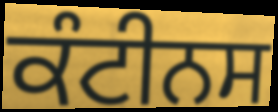
ਕੰਟੀਨਸ